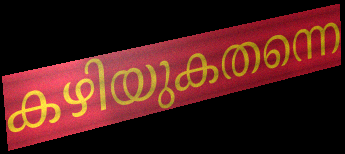
കഴിയുകതന്നെ